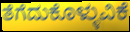
ತೆಗೆದುಕೊಳ್ಳುವಿಕೆ